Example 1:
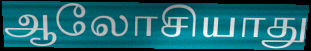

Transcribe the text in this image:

ஆலோசியாது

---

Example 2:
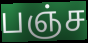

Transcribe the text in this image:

பஞ்ச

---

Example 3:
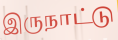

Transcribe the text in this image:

இருநாட்டு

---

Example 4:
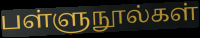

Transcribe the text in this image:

பள்ளுநூல்கள்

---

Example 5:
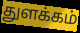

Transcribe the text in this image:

துளக்கம்